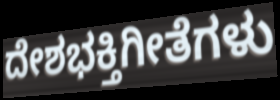
ದೇಶಭಕ್ತಿಗೀತೆಗಳು